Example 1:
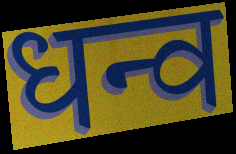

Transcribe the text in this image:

धन्व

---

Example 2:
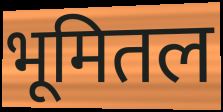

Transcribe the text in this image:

भूमितल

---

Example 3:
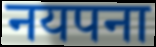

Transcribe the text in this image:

नयपना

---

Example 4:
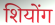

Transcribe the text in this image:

शियोंग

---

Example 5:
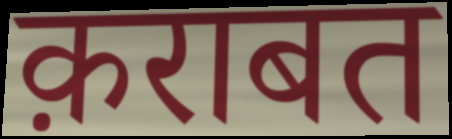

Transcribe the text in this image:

क़राबत